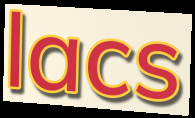
lacs